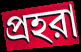
প্রহরা